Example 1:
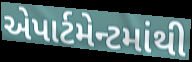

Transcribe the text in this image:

એપાર્ટમેન્ટમાંથી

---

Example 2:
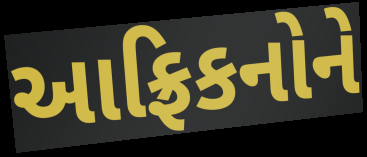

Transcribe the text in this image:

આફ્રિકનોને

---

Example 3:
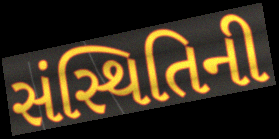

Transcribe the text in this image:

સંસ્થિતિની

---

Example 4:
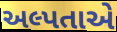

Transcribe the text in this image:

અલ્પતાએ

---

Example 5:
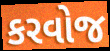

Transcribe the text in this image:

કરવોજ